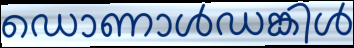
ഡൊണാൾഡങ്കിൾ